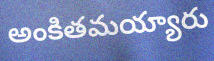
అంకితమయ్యారు